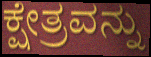
ಕ್ಷೇತ್ರವನ್ನು